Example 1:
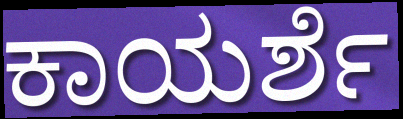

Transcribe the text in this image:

ಕಾಯರ್ಶೆ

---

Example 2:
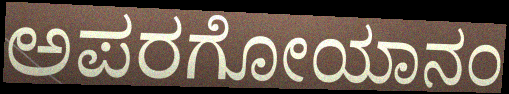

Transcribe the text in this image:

ಅಪರಗೋಯಾನಂ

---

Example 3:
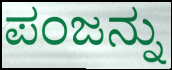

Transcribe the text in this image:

ಪಂಜನ್ನು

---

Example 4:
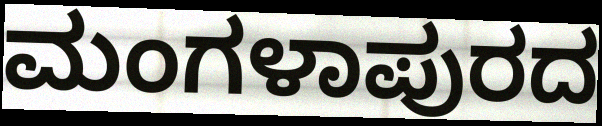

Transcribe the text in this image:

ಮಂಗಳಾಪುರದ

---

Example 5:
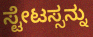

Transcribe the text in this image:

ಸ್ಟೇಟಸ್ಸನ್ನು